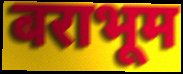
बराभूम